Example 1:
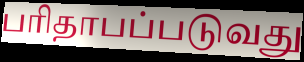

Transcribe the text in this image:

பரிதாபப்படுவது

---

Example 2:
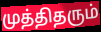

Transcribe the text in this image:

முத்திதரும்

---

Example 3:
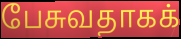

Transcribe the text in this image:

பேசுவதாகக்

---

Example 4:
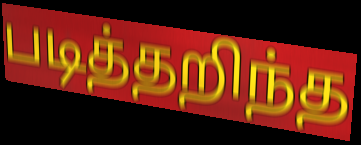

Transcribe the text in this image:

படித்தறிந்த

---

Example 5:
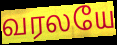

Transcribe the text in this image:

வரலயே